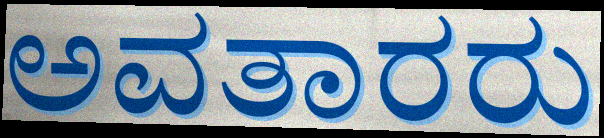
ಅವತಾರರು